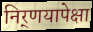
निर्णयापेक्षा